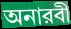
অনারবী